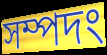
সম্পদং